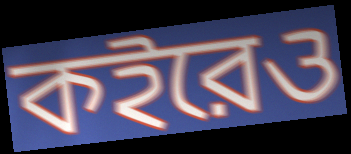
কইরেও